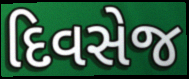
દિવસેજ